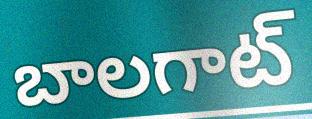
బాలగాట్